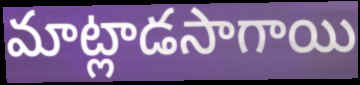
మాట్లాడసాగాయి